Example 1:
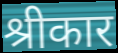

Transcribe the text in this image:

श्रीकार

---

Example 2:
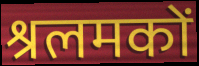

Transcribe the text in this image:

श्रलमकों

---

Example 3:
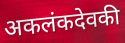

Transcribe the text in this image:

अकलंकदेवकी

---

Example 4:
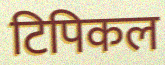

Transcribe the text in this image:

टिपिकल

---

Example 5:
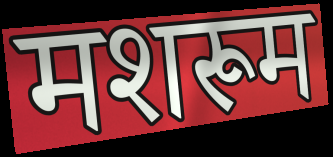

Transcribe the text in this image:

मशरूम